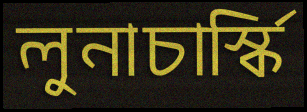
লুনাচার্স্কি